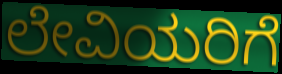
ಲೇವಿಯರಿಗೆ